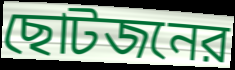
ছোটজনের